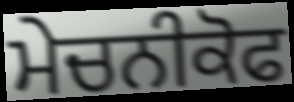
ਮੇਚਨੀਕੋਫ